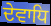
ਦੇਵਾਧਿ